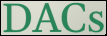
DACs